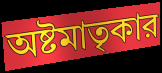
অষ্টমাতৃকার